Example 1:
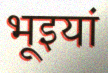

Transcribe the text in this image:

भूइयां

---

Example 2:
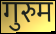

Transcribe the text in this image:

गुरुम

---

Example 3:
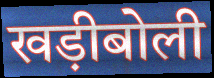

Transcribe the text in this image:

खड़ीबोली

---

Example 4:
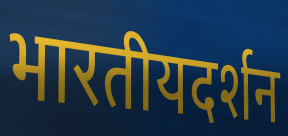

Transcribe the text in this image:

भारतीयदर्शन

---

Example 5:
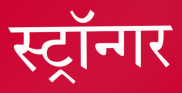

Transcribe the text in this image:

स्ट्रॉन्गर